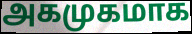
அகமுகமாக